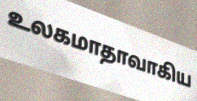
உலகமாதாவாகிய